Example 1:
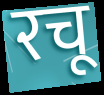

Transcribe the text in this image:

रचू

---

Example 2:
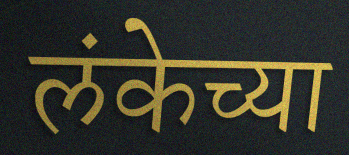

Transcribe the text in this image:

लंकेच्या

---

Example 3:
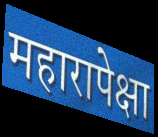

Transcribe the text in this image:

महारापेक्षा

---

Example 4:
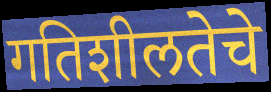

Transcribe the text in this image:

गतिशीलतेचे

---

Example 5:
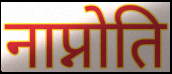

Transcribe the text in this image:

नाप्नोति